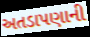
અતડાપણાની